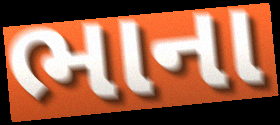
ભાના